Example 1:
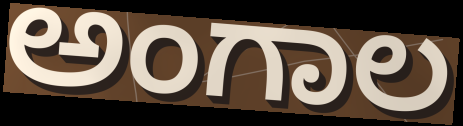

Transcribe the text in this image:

ಅಂಗಾಲ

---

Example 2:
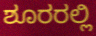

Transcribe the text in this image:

ಶೂರರಲ್ಲಿ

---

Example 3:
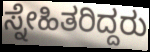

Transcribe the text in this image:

ಸ್ನೇಹಿತರಿದ್ದರು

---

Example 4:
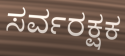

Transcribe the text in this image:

ಸರ್ವರಕ್ಷಕ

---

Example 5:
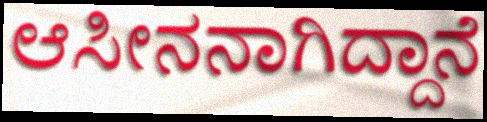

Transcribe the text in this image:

ಆಸೀನನಾಗಿದ್ದಾನೆ